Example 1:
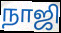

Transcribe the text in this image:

நாஜி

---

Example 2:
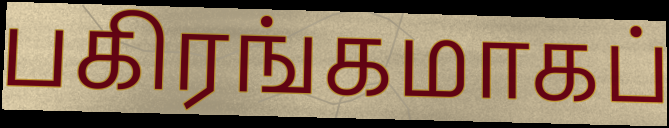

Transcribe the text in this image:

பகிரங்கமாகப்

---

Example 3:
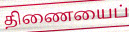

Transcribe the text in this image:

திணையைப்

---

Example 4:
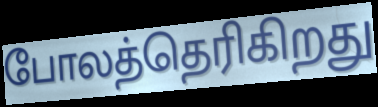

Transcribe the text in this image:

போலத்தெரிகிறது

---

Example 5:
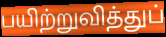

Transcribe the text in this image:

பயிற்றுவித்துப்